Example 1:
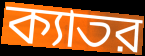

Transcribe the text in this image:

ক্যাতর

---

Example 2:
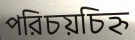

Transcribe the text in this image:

পরিচয়চিহ্ন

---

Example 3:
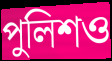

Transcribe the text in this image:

পুলিশও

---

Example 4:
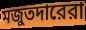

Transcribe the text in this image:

মজুতদারেরা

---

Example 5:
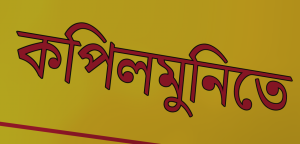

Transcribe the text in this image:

কপিলমুনিতে